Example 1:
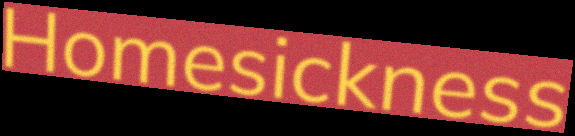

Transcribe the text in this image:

Homesickness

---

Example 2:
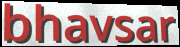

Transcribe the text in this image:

bhavsar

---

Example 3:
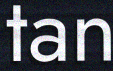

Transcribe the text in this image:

tan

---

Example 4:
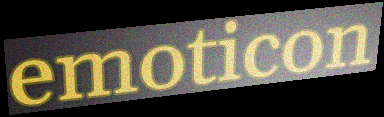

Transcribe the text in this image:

emoticon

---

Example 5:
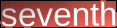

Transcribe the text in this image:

seventh